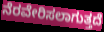
ನೆರವೇರಿಸಲಾಗುತ್ತದೆ